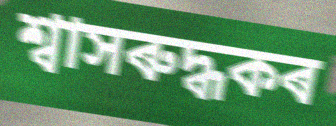
শ্বাসৰুদ্ধকৰ